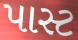
પાસ્ટ